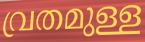
വ്രതമുള്ള